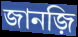
জানজ়ি